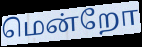
மென்றோ